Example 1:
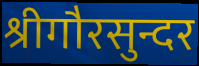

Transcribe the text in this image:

श्रीगौरसुन्दर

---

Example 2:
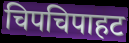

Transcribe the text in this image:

चिपचिपाहट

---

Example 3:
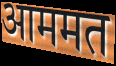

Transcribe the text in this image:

आममत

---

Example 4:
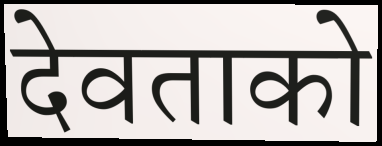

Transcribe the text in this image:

देवताको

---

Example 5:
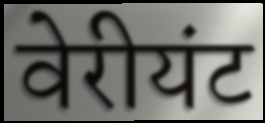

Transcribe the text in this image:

वेरीयंट